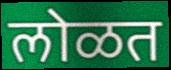
लोळत